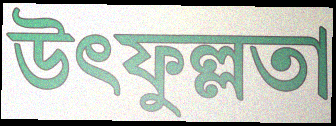
উৎফুল্লতা